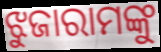
ଝୁଜାରାମଙ୍କୁ